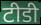
टीडी